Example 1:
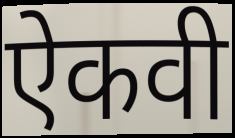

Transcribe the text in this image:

ऐकवी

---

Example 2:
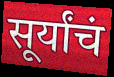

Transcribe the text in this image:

सूर्यांचं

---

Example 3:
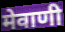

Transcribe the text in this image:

मेवाणी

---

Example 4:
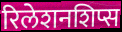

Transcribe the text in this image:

रिलेशनशिप्स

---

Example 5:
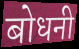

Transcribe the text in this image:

बोधनी